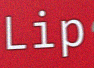
Lip